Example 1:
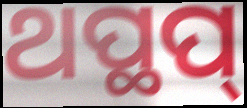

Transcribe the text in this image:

ଥପ୍ଥପ୍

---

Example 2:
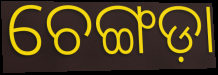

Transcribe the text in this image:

ଚେଙ୍ଗଡ଼ା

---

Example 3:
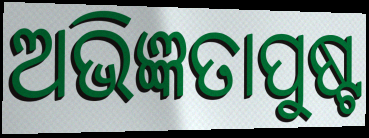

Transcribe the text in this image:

ଅଭିଜ୍ଞତାପୁଷ୍ଟ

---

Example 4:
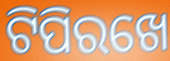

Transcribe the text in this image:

ଟିପିରଖେ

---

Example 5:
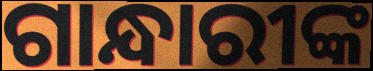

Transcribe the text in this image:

ଗାନ୍ଧାରୀଙ୍କ